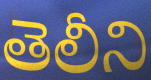
తెలీని